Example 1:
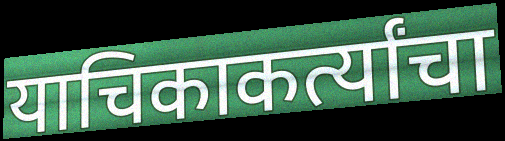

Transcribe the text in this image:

याचिकाकर्त्यांचा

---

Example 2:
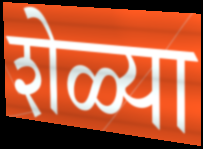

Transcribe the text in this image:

शेळ्या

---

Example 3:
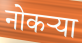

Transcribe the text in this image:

नोकऱ्या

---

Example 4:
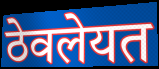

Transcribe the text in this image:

ठेवलेयत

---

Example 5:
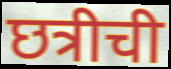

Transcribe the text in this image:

छत्रीची